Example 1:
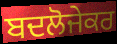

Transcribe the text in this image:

ਬਦਲੋਜੇਕਰ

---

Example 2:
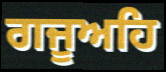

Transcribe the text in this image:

ਗਜੂਅਹਿ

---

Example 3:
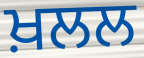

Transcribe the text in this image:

ਖ਼ਲਲ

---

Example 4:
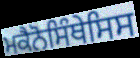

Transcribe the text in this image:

ਮਕੈਨੋਸਿੰਥੇਸਿਸ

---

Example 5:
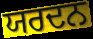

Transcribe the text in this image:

ਯਰਦਨ